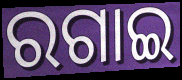
ରଗାଇ